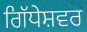
ਗਿੱਧੇਸ਼ਵਰ